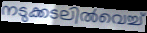
നടുക്കടലിൽവെച്ച്